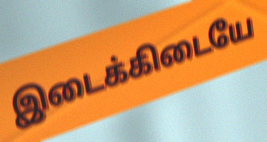
இடைக்கிடையே